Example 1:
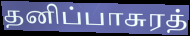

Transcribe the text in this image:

தனிப்பாசுரத்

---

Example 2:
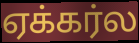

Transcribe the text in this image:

ஏக்கர்ல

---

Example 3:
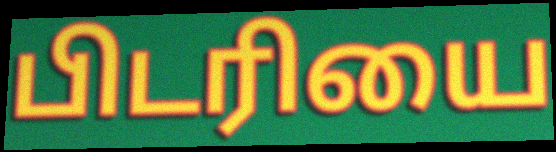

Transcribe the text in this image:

பிடரியை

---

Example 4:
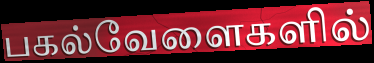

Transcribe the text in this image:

பகல்வேளைகளில்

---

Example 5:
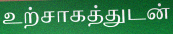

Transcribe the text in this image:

உற்சாகத்துடன்